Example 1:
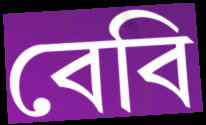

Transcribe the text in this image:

বেবি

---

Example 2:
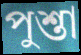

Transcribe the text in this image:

পুশ্তা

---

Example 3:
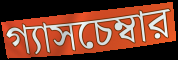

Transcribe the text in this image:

গ্যাসচেম্বার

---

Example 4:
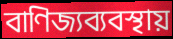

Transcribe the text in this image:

বাণিজ্যব্যবস্থায়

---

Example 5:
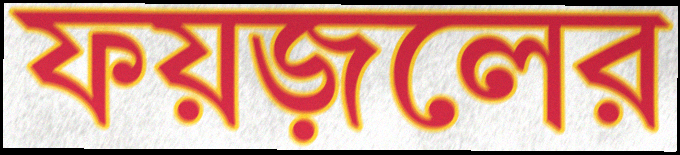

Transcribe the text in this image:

ফয়জ়লের